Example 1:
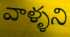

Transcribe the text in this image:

వాళ్ళని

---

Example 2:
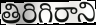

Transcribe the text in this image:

తిరిగిరాని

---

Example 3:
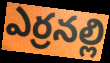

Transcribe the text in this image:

ఎర్రనల్లి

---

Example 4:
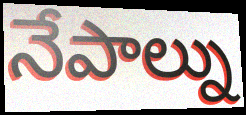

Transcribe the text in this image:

నేపాల్ను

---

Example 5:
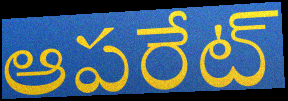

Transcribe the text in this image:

ఆపరేట్